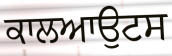
ਕਾਲਆਉਟਸ